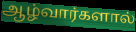
ஆழ்வார்களால்